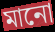
মানো